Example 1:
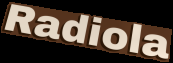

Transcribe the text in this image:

Radiola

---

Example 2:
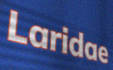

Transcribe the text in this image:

Laridae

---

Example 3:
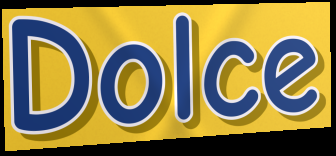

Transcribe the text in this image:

Dolce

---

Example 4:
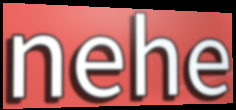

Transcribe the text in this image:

nehe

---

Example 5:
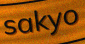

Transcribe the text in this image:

sakyo